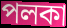
পলকা